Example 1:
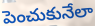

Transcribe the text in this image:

పెంచుకునేలా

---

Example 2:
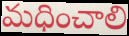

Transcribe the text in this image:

మధించాలి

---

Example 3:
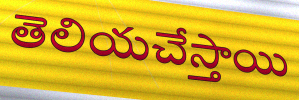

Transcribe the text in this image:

తెలియచేస్తాయి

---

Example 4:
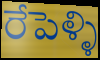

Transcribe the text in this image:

రేపెళ్ళి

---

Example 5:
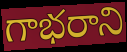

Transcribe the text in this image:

గాభరాని